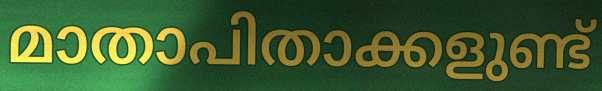
മാതാപിതാക്കളുണ്ട്